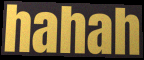
hahah